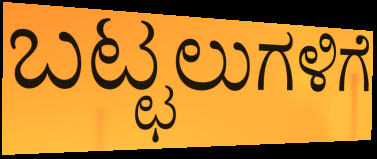
ಬಟ್ಟಲುಗಳಿಗೆ